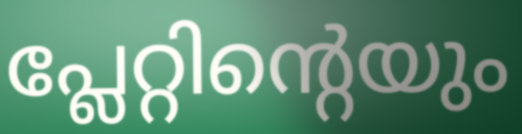
പ്ലേറ്റിന്റെയും